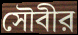
সৌবীর